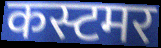
कस्‍टमर